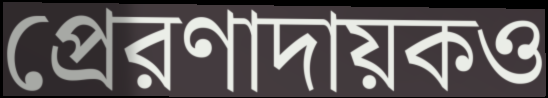
প্রেরণাদায়কও